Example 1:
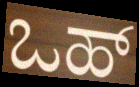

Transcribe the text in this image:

ಒಹ್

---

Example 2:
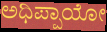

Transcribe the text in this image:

ಅಧಿಪ್ಪಾಯೋ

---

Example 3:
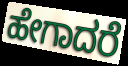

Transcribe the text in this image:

ಹೇಗಾದರೆ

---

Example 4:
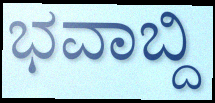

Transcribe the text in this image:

ಭವಾಬ್ದಿ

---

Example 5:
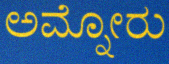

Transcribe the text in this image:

ಅಮ್ನೋರು